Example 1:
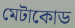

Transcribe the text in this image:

মেটাকোড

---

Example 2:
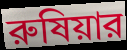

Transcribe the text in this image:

রুষিয়ার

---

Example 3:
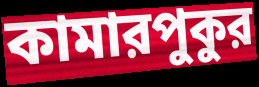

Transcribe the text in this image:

কামারপুকুর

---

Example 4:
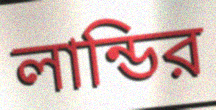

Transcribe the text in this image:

লান্ডির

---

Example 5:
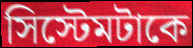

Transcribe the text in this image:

সিস্টেমটাকে